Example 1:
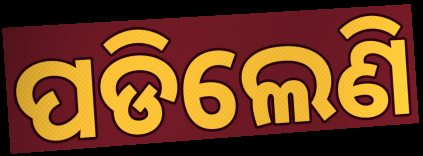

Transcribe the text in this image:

ପଡିଲେଣି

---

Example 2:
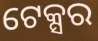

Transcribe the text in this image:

ଟେକ୍ସର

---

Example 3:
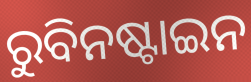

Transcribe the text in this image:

ରୁବିନଷ୍ଟାଇନ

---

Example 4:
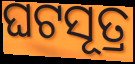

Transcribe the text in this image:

ଘଟସୂତ୍ର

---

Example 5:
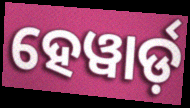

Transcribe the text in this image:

ହେୱାର୍ଡ଼